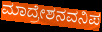
ಮಾದ್ರೇಶನವನಿಪ